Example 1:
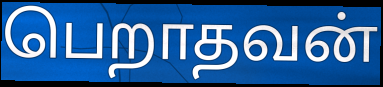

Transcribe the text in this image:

பெறாதவன்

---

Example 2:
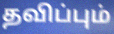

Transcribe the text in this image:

தவிப்பும்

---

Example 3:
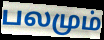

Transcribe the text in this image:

பலமும்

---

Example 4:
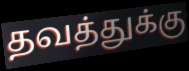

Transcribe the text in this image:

தவத்துக்கு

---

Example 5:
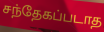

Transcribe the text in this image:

சந்தேகப்படாத